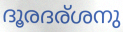
ദൂരദര്ശനു